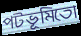
পটভূমিতো